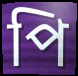
পি